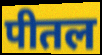
पीतल